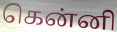
கென்னி